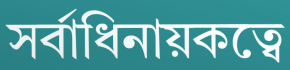
সর্বাধিনায়কত্বে